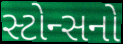
સ્ટોન્સનો